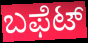
ಬಫೆಟ್